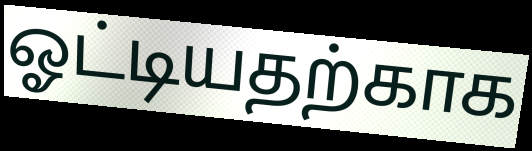
ஓட்டியதற்காக